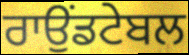
ਰਾਉਂਡਟੇਬਲ